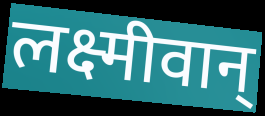
लक्ष्मीवान्